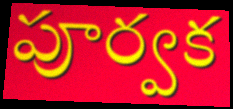
పూర్వక